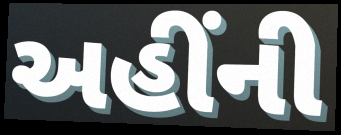
અહીંની